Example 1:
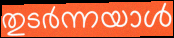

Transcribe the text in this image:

തുടർന്നയാൾ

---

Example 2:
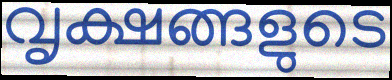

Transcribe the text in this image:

വൃക്ഷങ്ങളുടെ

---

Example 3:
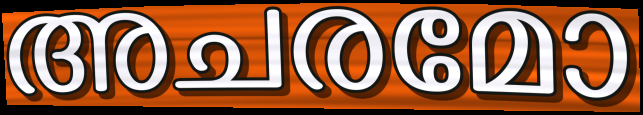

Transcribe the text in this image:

അചരമോ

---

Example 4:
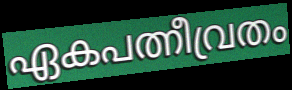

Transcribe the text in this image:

ഏകപത്നീവ്രതം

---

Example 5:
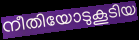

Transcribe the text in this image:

നീതിയോടുകൂടിയ